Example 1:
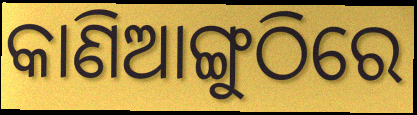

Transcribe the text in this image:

କାଣିଆଙ୍ଗୁଠିରେ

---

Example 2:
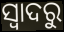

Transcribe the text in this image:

ସ୍ୱାଦରୁ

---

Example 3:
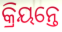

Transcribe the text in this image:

କ୍ରିୟନ୍ତେ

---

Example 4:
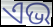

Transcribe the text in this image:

ଏଭ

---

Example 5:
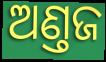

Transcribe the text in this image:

ଅଣ୍ତଜ